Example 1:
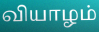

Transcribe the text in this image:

வியாழம்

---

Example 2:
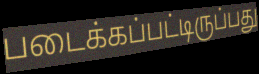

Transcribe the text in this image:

படைக்கப்பட்டிருப்பது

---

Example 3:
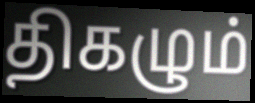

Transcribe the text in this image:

திகழும்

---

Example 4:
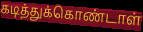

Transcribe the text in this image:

கடித்துக்கொண்டாள்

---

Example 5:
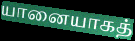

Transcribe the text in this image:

யானையாகத்